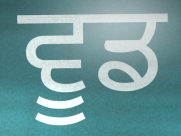
ਵੂਡ